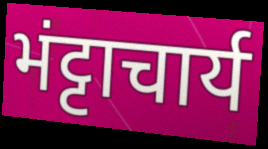
भंट्टाचार्य